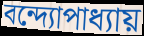
বন্দ্যোপাধ্যায়